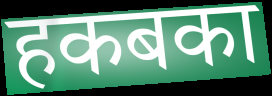
हकबका